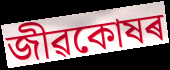
জীৱকোষৰ